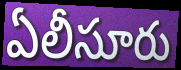
ఏలీసూరు